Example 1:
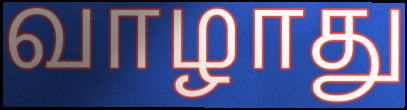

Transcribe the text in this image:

வாழாது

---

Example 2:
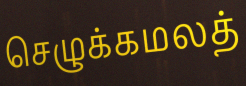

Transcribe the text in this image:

செழுக்கமலத்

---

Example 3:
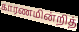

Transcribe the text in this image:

காரணமின்றித்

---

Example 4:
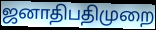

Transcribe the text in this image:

ஜனாதிபதிமுறை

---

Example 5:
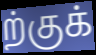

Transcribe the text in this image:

ற்குக்